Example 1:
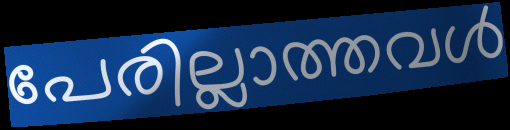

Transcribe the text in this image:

പേരില്ലാത്തവൾ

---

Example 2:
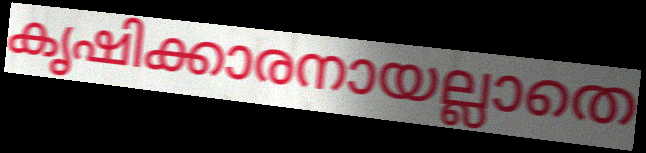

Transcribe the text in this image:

കൃഷിക്കാരനായല്ലാതെ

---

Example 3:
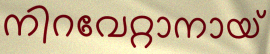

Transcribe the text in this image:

നിറവേറ്റാനായ്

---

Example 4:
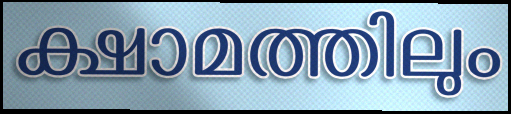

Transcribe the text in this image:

ക്ഷാമത്തിലും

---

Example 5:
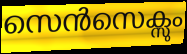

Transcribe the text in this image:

സെൻസെക്സും